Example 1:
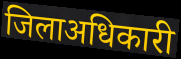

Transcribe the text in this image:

जिलाअधिकारी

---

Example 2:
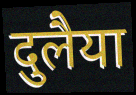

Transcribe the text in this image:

दुलैया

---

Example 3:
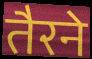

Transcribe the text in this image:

तैरने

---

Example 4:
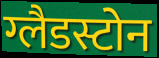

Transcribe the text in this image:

ग्लैडस्टोन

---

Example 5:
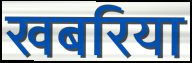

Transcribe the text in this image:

खबरिया